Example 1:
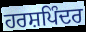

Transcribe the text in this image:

ਹਰਸ਼ਪਿੰਦਰ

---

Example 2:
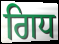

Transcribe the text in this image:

ਗਿਧ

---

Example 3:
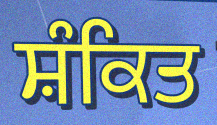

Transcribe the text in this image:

ਸ਼ੰਕਿਤ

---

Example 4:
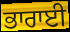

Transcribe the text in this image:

ਭਾਰਾਈ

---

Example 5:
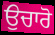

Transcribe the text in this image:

ਉਚਾਰੋ